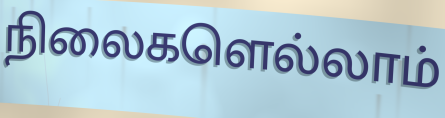
நிலைகளெல்லாம்